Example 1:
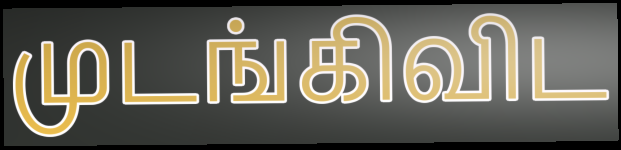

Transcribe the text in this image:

முடங்கிவிட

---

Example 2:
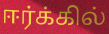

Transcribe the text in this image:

ஈர்க்கில்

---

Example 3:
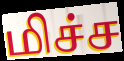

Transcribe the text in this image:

மிச்ச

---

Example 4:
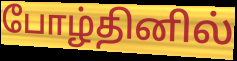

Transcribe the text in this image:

போழ்தினில்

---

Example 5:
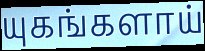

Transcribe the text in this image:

யுகங்களாய்